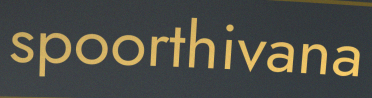
spoorthivana